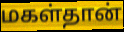
மகள்தான்